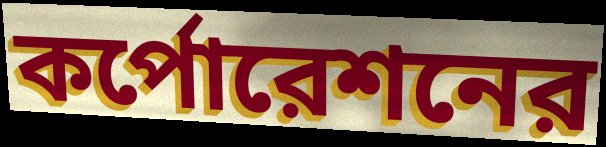
কর্পোরেশনের